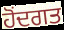
ਹੋਂਦਗਤ